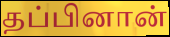
தப்பினான்